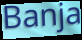
Banja